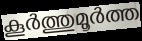
കൂർത്തുമൂർത്ത